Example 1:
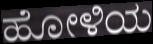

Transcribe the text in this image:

ಹೋಳಿಯ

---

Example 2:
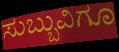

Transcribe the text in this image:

ಸುಬ್ಬುವಿಗೂ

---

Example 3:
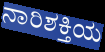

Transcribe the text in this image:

ನಾರಿಶಕ್ತಿಯ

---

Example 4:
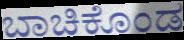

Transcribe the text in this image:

ಬಾಚಿಕೊಂಡ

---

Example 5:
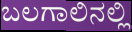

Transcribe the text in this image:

ಬಲಗಾಲಿನಲ್ಲಿ